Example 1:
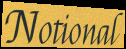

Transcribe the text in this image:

Notional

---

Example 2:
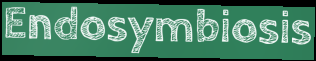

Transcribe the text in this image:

Endosymbiosis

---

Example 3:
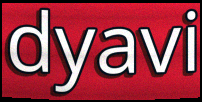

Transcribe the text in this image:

dyavi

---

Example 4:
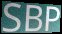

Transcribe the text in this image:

SBP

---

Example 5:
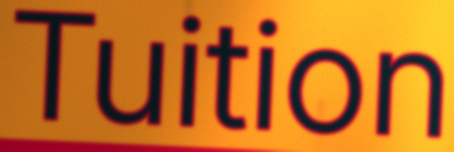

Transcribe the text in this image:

Tuition